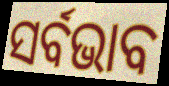
ସର୍ବଭାବ